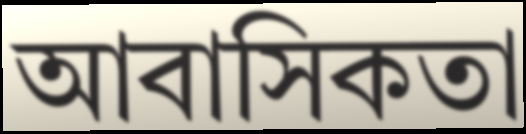
আবাসিকতা